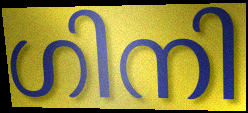
ഗിനി